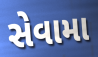
સેવામા